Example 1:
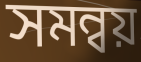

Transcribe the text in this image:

সমন্বয়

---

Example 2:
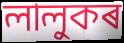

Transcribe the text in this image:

লালুকৰ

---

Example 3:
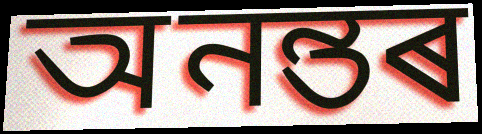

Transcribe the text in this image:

অনন্তৰ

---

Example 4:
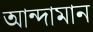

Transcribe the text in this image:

আন্দামান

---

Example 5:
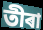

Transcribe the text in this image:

তীৰা